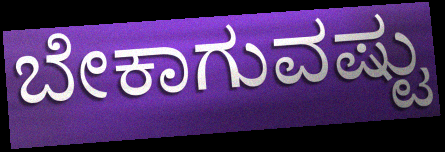
ಬೇಕಾಗುವಷ್ಟು